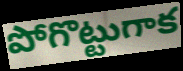
పోగొట్టుగాక